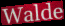
Walde